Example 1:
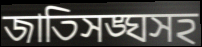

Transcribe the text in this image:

জাতিসঙ্ঘসহ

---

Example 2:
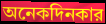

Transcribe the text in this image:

অনেকদিনকার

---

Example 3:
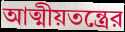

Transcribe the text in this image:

আত্মীয়তন্ত্রের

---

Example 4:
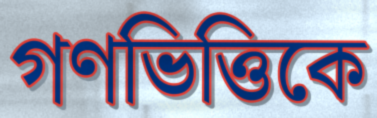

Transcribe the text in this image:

গণভিত্তিকে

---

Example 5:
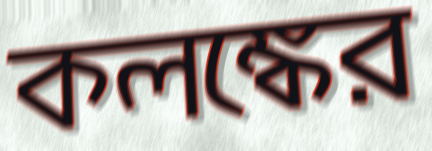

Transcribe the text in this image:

কলঙ্কের